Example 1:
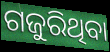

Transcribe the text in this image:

ଗଜୁରିଥିବା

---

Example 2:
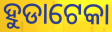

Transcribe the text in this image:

ହୁଡାଟେକା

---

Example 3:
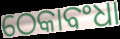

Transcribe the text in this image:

ଠେକାବଂଧା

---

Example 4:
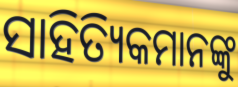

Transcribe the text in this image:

ସାହିତ୍ୟିକମାନଙ୍କୁ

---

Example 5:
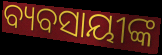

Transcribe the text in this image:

ବ୍ୟବସାୟୀଙ୍କ